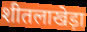
शीतलाखेड़ा